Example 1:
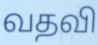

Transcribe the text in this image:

வதவி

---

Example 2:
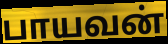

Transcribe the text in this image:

பாயவன்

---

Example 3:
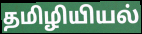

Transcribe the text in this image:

தமிழியியல்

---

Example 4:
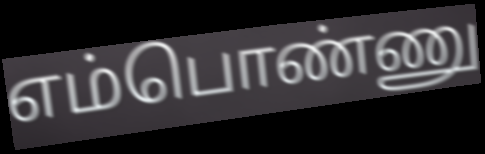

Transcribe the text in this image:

எம்பொண்ணு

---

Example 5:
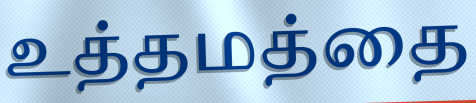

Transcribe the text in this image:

உத்தமத்தை